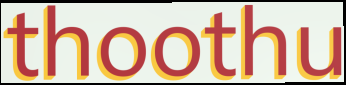
thoothu